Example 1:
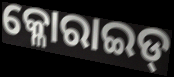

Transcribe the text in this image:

କ୍ଳୋରାଇଡ୍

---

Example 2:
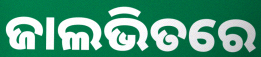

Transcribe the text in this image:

ଜାଲଭିତରେ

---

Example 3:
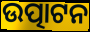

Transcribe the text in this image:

ଉତ୍ପାଟନ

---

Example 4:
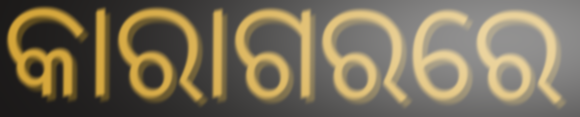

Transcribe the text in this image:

କାରାଗରରେ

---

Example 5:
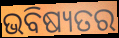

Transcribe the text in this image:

ଭବିଷ୍ୟତର